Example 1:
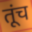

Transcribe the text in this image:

तूंच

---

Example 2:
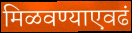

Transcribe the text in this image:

मिळवण्याएवढं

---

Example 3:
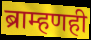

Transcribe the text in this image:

ब्राम्हणही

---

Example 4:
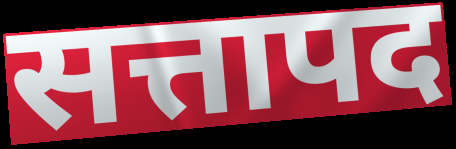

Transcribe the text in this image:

सत्तापद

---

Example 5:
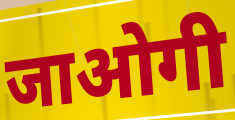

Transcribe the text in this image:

जाओगी